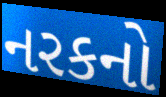
નરકનો